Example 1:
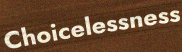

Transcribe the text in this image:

Choicelessness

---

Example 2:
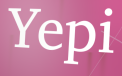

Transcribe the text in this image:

Yepi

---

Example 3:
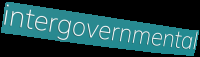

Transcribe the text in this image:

intergovernmental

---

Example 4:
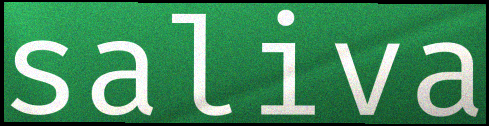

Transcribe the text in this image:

saliva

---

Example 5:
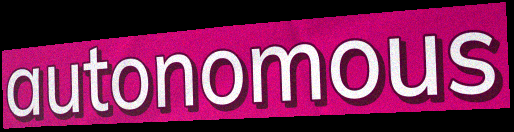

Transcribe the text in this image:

autonomous